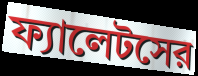
ফ্যালেটসের